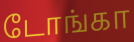
டோங்கா